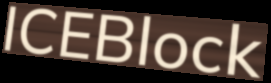
ICEBlock